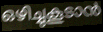
ഒഴിച്ചുകൂടാൻ